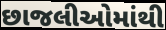
છાજલીઓમાંથી